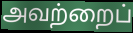
அவற்றைப்